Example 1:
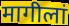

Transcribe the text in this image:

मागीलां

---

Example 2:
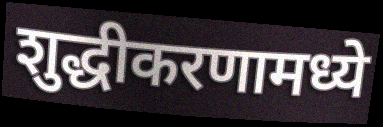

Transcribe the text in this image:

शुद्धीकरणामध्ये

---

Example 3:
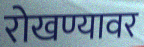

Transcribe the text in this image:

रोखण्यावर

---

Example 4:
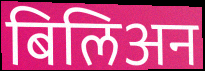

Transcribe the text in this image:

बिलिअन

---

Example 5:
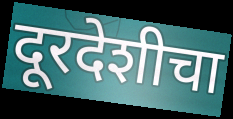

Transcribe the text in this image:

दूरदेशीचा